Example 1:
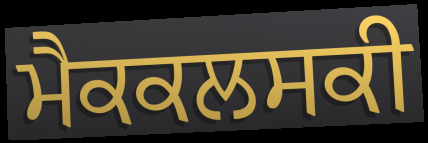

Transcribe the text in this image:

ਮੈਕਕਲਸਕੀ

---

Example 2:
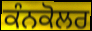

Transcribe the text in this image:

ਕੰਨਕੋਲਰ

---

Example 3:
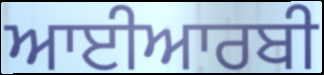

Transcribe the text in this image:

ਆਈਆਰਬੀ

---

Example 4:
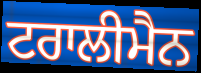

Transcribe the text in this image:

ਟਰਾਲੀਮੈਨ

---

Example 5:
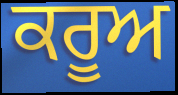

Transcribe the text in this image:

ਕਰੂਅ